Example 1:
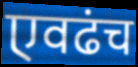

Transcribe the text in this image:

एवढंच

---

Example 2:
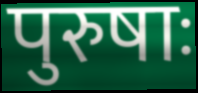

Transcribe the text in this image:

पुरुषाः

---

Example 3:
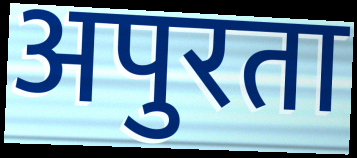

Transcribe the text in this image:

अपुरता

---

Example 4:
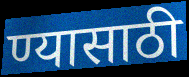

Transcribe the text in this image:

ण्यासाठी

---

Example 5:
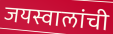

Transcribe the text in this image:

जयस्वालांची